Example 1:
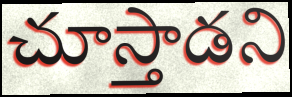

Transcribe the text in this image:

చూస్తాడని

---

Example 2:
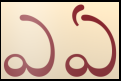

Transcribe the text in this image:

ఎఏ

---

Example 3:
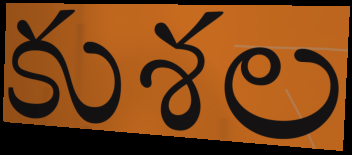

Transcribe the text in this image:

కుశల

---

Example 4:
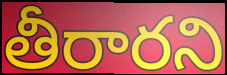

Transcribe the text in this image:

తీరారని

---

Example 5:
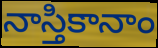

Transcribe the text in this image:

నాస్తికానాం